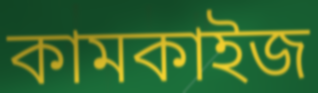
কামকাইজ